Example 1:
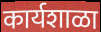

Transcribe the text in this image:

कार्यशाळा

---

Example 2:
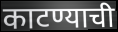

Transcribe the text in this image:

काटण्याची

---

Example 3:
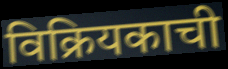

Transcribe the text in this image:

विक्रियकाची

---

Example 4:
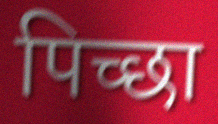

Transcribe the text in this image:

पिच्छा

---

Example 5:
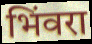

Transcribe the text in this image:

भिंवरा